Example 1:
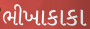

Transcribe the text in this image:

ભીખાકાકા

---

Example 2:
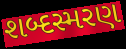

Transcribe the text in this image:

શબ્દસ્મરણ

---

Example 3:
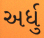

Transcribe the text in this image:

અર્ધુ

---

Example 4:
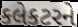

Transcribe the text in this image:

કલેકટરને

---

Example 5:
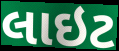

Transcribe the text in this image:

લાઇટ